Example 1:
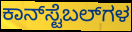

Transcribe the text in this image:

ಕಾನ್‌ಸ್ಟೆಬಲ್‌ಗಳ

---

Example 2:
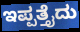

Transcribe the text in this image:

ಇಪ್ಪತ್ತೈದು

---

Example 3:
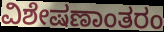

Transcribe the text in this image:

ವಿಶೇಷಣಾಂತರಂ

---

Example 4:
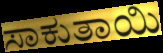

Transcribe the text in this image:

ಸಾಕುತಾಯಿ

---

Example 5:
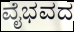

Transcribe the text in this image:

ವೈಭವದ